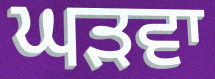
ਘੜਵਾ